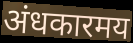
अंधकारमय